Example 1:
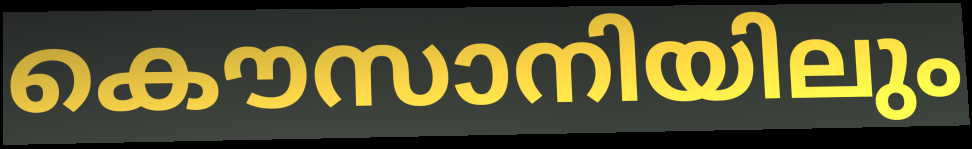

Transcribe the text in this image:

കൌസാനിയിലും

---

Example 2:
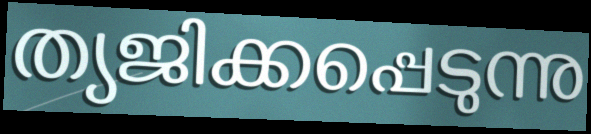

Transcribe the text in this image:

ത്യജിക്കപ്പെടുന്നു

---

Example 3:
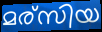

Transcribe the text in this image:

മര്സിയ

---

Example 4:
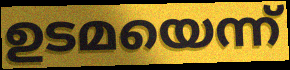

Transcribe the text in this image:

ഉടമയെന്ന്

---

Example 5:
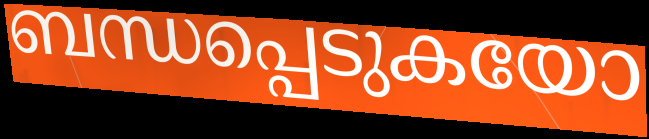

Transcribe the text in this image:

ബന്ധപ്പെടുകയോ